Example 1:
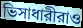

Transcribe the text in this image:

ভিসাধারীরাও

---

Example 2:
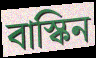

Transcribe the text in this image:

বাস্কিন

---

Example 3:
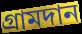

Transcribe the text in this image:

গ্রামদান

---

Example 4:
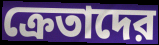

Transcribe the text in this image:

ক্রেতাদের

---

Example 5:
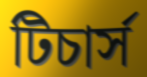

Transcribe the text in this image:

টিচার্স